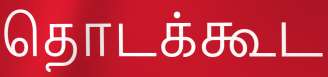
தொடக்கூட